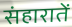
संहारातें